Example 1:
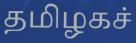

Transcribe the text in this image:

தமிழகச்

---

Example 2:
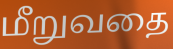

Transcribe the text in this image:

மீறுவதை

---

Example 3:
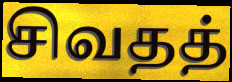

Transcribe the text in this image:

சிவதத்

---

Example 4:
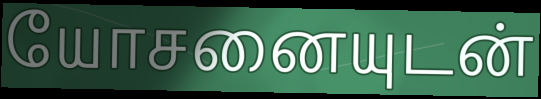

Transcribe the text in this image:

யோசனையுடன்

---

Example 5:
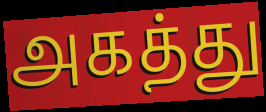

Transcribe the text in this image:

அகத்து